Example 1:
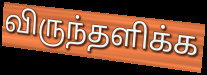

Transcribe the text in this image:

விருந்தளிக்க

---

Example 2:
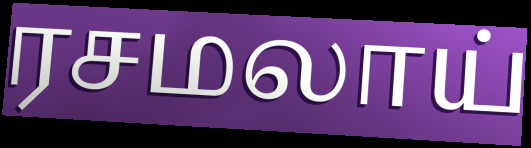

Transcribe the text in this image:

ரசமலாய்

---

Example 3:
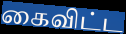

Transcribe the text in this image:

கைவிட்ட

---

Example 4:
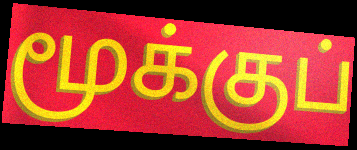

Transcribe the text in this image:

மூக்குப்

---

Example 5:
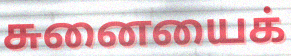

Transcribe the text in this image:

சுனையைக்